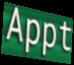
Appt